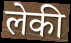
लेकी